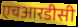
एचआरडीसी